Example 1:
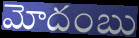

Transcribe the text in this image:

మోదంబు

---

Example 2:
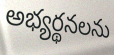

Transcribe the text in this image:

అభ్యర్థనలను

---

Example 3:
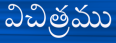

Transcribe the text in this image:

విచిత్రము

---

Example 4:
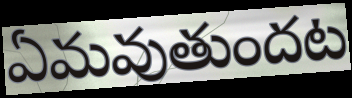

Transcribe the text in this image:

ఏమవుతుందట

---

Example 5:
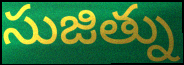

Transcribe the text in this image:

సుజిత్ను